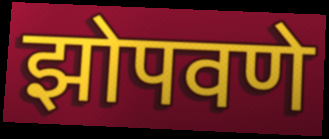
झोपवणे